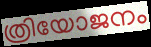
ത്രിയോജനം